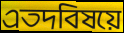
এতদবিষয়ে